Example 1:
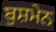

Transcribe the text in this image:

ਬੁਸ਼ਮੇਨ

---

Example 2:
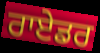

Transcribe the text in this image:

ਰਾਏਡਰ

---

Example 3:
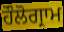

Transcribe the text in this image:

ਹੌਲੋਗ੍ਰਾਮ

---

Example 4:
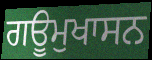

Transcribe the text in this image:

ਗਊਮੁਖਾਸਨ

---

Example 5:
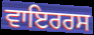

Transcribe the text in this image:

ਵਾਇਰਰਸ